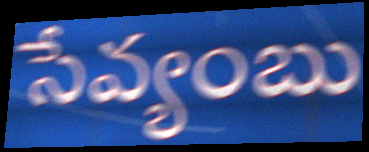
సేవ్యంబు